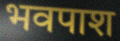
भवपाश